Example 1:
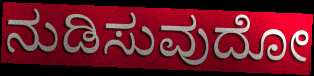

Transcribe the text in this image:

ನುಡಿಸುವುದೋ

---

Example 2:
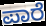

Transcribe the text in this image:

ಪಾರೆ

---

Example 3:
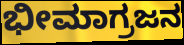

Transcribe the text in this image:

ಭೀಮಾಗ್ರಜನ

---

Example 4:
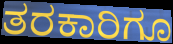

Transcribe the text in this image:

ತರಕಾರಿಗೂ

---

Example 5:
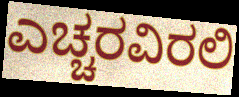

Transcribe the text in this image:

ಎಚ್ಚರವಿರಲಿ